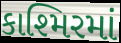
કાશ્મિરમાં